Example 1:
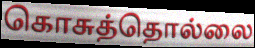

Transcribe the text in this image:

கொசுத்தொல்லை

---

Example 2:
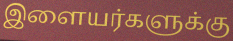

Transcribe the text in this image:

இளையர்களுக்கு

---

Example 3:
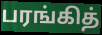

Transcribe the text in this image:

பரங்கித்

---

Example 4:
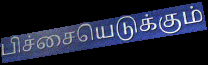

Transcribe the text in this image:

பிச்சையெடுக்கும்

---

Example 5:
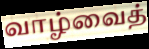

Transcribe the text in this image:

வாழ்வைத்